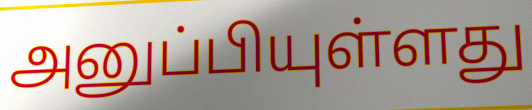
அனுப்பியுள்ளது